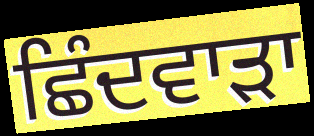
ਛਿੰਦਵਾੜਾ